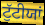
ਟੁੱਟੀਯਾਂ